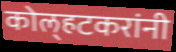
कोल्हटकरांनी